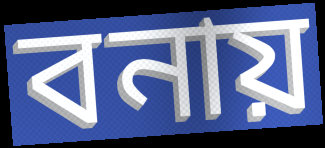
বনায়